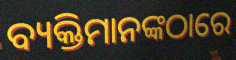
ବ୍ୟକ୍ତିମାନଙ୍କଠାରେ